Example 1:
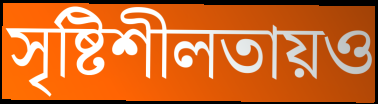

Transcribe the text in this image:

সৃষ্টিশীলতায়ও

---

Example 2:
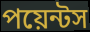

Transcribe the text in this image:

পয়েন্টস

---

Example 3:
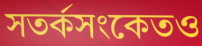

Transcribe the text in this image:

সতর্কসংকেতও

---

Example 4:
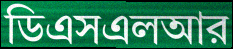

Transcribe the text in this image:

ডিএসএলআর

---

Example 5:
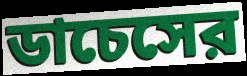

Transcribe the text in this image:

ডাচেসের